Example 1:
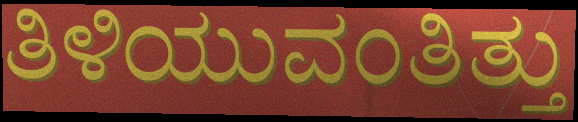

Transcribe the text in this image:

ತಿಳಿಯುವಂತಿತ್ತು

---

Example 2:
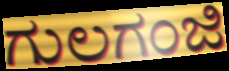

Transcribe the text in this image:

ಗುಲಗಂಜಿ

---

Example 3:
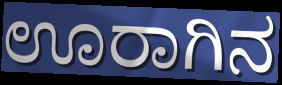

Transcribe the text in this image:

ಊರಾಗಿನ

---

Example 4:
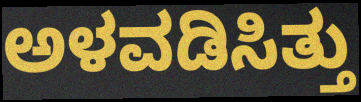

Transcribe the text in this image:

ಅಳವಡಿಸಿತ್ತು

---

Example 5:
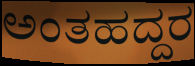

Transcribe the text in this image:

ಅಂತಹದ್ದರ